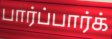
பார்ப்பார்க்